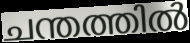
ചന്തത്തിൽ